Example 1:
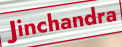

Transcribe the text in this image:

Jinchandra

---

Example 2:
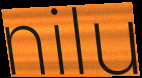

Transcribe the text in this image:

nilu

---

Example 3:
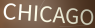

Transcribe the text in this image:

CHICAGO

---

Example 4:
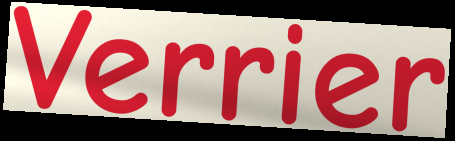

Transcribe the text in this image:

Verrier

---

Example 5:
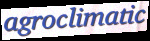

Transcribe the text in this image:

agroclimatic